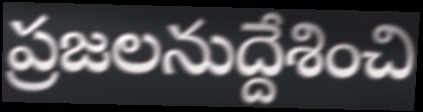
ప్రజలనుద్దేశించి